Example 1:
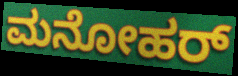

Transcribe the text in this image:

ಮನೋಹರ್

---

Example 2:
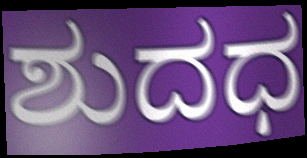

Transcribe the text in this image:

ಶುದಧ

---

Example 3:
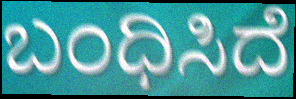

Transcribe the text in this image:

ಬಂಧಿಸಿದೆ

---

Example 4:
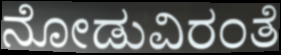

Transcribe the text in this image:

ನೋಡುವಿರಂತೆ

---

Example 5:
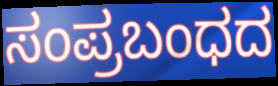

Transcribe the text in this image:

ಸಂಪ್ರಬಂಧದ